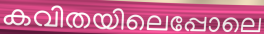
കവിതയിലെപ്പോലെ